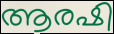
ആരഷി